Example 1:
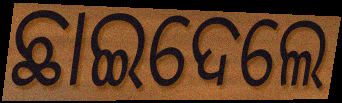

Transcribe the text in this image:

ଛାଇଦେଲେ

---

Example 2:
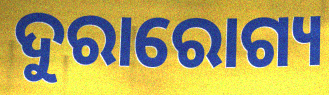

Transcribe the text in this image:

ଦୁରାରୋଗ୍ୟ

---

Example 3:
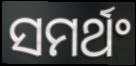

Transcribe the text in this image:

ସମର୍ଥଂ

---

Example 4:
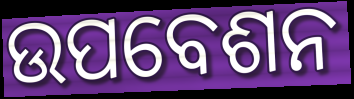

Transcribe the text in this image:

ଉପବେଶନ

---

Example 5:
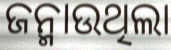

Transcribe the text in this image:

ଜନ୍ମାଉଥିଲା